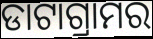
ଡାଟାଗ୍ରାମର